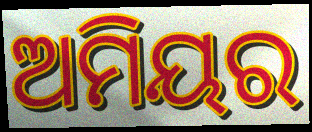
ଅମିୟର